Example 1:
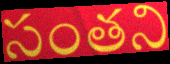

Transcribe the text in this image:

సంతని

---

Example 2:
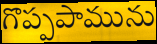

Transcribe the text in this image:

గొప్పపామును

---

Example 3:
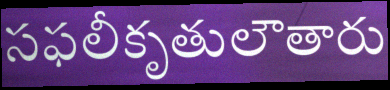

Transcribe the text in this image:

సఫలీకృతులౌతారు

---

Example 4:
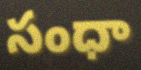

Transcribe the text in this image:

సంధా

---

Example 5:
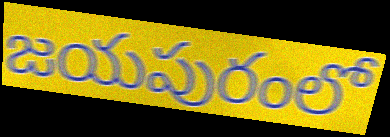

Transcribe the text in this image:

జయపురంలో